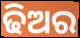
ଢିଅର